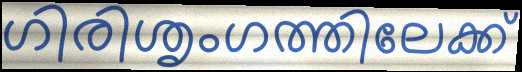
ഗിരിശൃംഗത്തിലേക്ക്